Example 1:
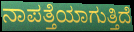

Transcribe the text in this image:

ನಾಪತ್ತೆಯಾಗುತ್ತಿದೆ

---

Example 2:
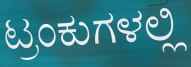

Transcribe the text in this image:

ಟ್ರಂಕುಗಳಲ್ಲಿ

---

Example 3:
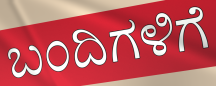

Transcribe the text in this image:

ಬಂದಿಗಳಿಗೆ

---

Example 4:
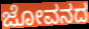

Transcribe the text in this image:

ಜೋವನದ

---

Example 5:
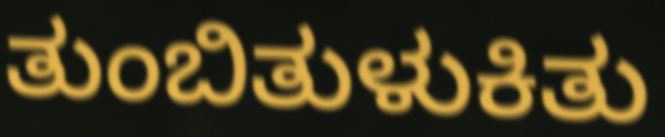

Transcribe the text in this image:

ತುಂಬಿತುಳುಕಿತು